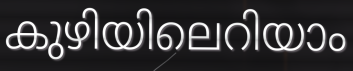
കുഴിയിലെറിയാം